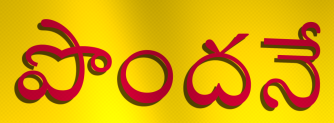
పొందనే